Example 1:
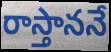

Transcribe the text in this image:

రాస్తాననే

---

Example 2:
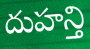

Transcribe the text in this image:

దుహన్తి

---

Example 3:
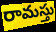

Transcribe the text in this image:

రామస్తు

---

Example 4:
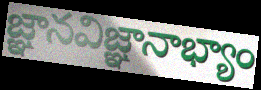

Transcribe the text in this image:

జ్ఞానవిజ్ఞానాభ్యాం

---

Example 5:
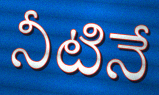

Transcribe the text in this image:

నీటినే